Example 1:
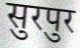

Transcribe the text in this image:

सुरपुर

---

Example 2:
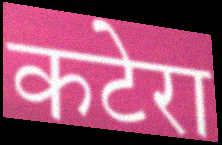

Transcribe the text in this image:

कटेरा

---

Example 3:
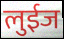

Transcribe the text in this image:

लुईज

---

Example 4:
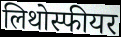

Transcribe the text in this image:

लिथोस्फीयर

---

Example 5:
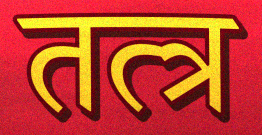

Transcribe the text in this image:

तत्त्र